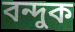
বন্দুক